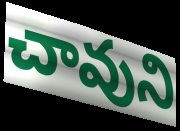
చావుని